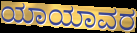
ಯಾಯಾವರ